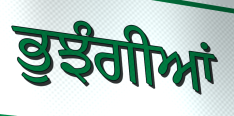
ਭੁਝੰਗੀਆਂ